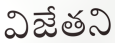
విజేతని